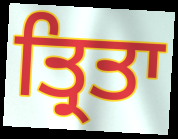
ਤ੍ਰਿਤਾ